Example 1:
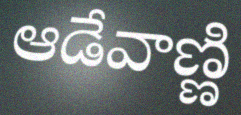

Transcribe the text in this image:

ఆడేవాణ్ణి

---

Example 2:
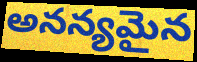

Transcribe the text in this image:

అనన్యమైన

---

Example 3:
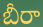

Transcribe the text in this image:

బీరా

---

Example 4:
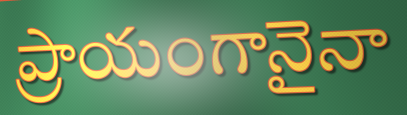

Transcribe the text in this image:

ప్రాయంగానైనా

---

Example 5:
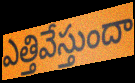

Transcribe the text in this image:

ఎత్తివేస్తుందా